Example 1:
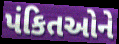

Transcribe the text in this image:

પંકિતઓને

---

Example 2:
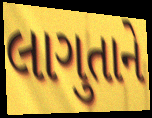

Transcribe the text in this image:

લાગુતાને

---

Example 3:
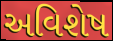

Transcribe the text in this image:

અવિશેષ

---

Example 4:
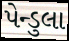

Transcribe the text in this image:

પેન્ડુલા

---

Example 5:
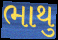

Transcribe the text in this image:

ભાથુ